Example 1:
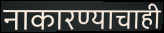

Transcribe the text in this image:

नाकारण्याचाही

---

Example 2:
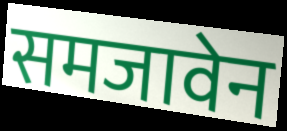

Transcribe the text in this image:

समजावेन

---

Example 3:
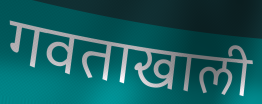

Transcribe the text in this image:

गवताखाली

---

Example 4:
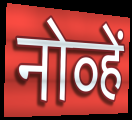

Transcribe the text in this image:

नोव्हें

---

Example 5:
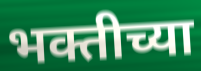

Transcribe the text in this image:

भक्तीच्या